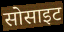
सोसाइट